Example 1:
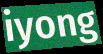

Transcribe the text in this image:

iyong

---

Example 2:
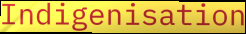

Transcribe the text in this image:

Indigenisation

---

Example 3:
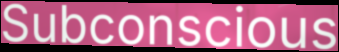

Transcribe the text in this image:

Subconscious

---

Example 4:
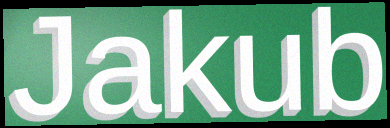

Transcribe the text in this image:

Jakub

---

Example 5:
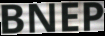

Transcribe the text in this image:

BNEP